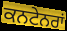
ਕਨਟੇਨਰਾਂ